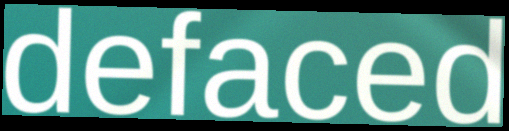
defaced